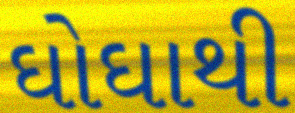
ઘોઘાથી